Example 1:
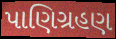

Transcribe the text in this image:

પાણિગ્રહણ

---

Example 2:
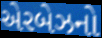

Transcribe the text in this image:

એરબેઝનો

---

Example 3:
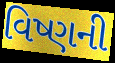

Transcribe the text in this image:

વિષ્ણની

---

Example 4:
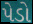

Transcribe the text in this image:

પેડો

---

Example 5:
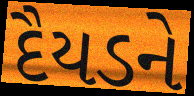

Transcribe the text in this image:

દૈયડને